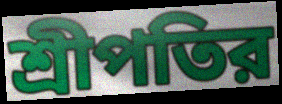
শ্রীপতির